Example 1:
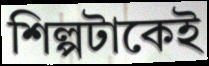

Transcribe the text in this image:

শিল্পটাকেই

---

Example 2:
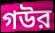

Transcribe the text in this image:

গউর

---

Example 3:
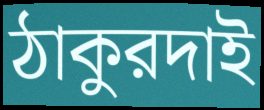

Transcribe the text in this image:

ঠাকুরদাই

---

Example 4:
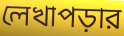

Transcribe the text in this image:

লেখাপড়ার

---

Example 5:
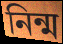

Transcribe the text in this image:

নিন্ম